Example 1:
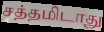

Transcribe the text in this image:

சத்தமிடாது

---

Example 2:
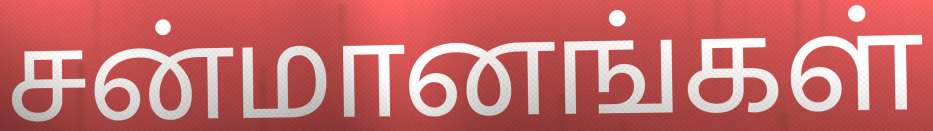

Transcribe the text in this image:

சன்மானங்கள்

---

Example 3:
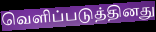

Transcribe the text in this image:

வெளிப்படுத்தினது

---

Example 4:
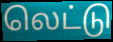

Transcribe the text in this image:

லெட்டு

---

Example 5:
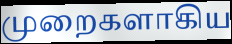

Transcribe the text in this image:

முறைகளாகிய